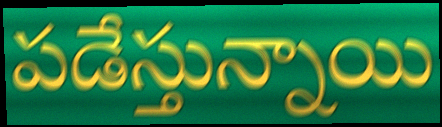
పడేస్తున్నాయి